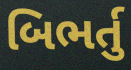
બિભર્તુ